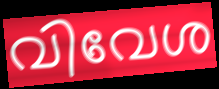
വിവേശ